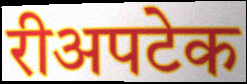
रीअपटेक